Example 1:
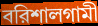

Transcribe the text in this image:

বরিশালগামী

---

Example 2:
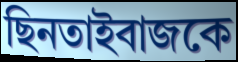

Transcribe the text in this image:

ছিনতাইবাজকে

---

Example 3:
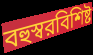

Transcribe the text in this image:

বহুস্বরবিশিষ্ট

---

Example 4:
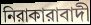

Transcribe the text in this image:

নিরাকারাবাদী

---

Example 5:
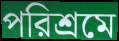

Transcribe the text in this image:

পরিশ্রমে